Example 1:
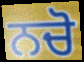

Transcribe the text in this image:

ਨਚੋ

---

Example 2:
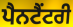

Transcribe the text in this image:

ਪੈਨਟੈਂਟਰੀ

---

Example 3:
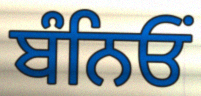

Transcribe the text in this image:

ਬੰਨਿਓਂ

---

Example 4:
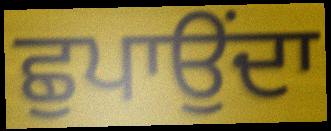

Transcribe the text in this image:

ਛੁਪਾਉਂਦਾ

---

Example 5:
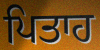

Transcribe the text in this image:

ਪਿਤਾਹ